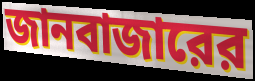
জানবাজারের